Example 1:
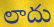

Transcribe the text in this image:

లాదు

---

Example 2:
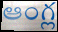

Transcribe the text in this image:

ఆంగ్ల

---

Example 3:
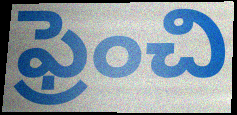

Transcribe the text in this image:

ఫ్రెంచి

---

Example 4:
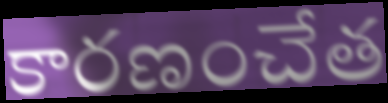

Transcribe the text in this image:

కారణంచేత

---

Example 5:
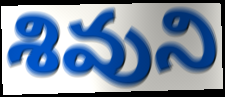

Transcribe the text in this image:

శివుని